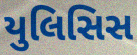
યુલિસિસ